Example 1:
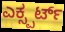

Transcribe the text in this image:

ಎಕ್ಸ್ಪರ್ಟ್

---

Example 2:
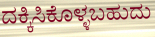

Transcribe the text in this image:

ದಕ್ಕಿಸಿಕೊಳ್ಳಬಹುದು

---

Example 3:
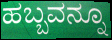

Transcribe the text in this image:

ಹಬ್ಬವನ್ನೂ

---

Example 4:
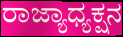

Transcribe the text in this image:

ರಾಜ್ಯಾಧ್ಯಕ್ಷನ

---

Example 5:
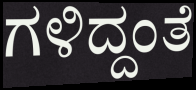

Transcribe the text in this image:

ಗಳಿದ್ದಂತೆ